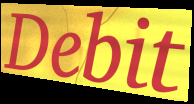
Debit